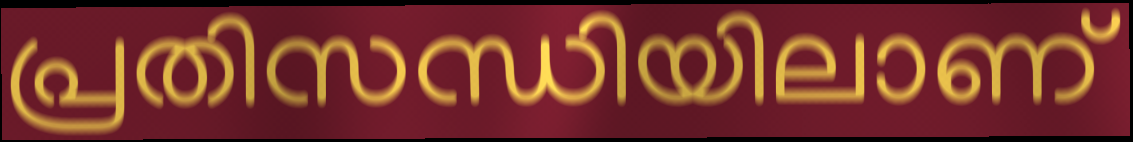
പ്രതിസന്ധിയിലാണ്